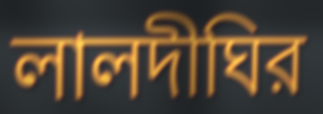
লালদীঘির